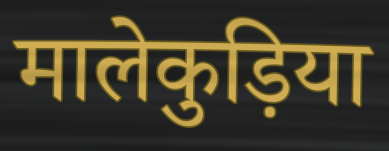
मालेकुड़िया